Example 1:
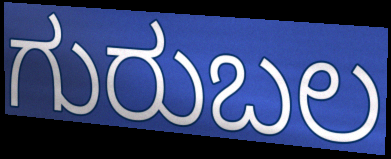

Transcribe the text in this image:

ಗುರುಬಲ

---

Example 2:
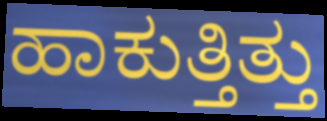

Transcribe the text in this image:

ಹಾಕುತ್ತಿತ್ತು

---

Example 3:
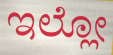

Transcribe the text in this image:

ಇಲ್ಲೋ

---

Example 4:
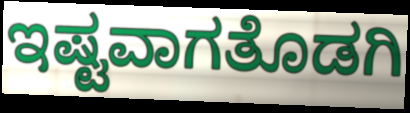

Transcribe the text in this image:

ಇಷ್ಟವಾಗತೊಡಗಿ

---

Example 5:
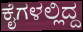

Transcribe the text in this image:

ಕೈಗಳಲ್ಲಿದ್ದ